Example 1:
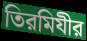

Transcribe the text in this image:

তিরমিযীর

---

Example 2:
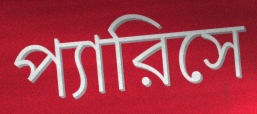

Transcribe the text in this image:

প্যারিসে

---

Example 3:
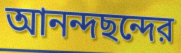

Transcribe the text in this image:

আনন্দছন্দের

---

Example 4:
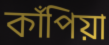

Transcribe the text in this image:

কাঁপিয়া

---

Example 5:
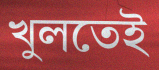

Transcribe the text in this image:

খুলতেই